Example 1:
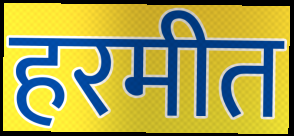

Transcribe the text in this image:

हरमीत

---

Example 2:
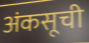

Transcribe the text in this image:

अंकसूची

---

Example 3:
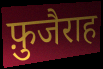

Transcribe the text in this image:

फ़ुजैराह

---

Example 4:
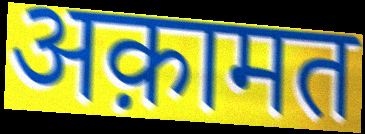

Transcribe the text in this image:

अक़ामत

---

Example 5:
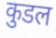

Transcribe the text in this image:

कुडल